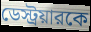
ডেস্ট্রয়ারকে